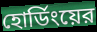
হোর্ডিংয়ের